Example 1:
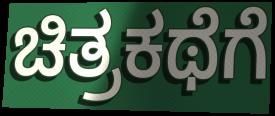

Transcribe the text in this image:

ಚಿತ್ರಕಥೆಗೆ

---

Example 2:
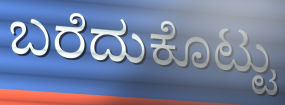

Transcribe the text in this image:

ಬರೆದುಕೊಟ್ಟು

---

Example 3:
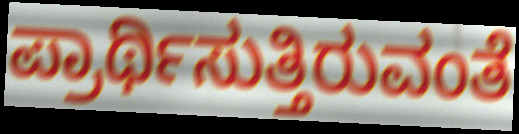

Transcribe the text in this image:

ಪ್ರಾರ್ಥಿಸುತ್ತಿರುವಂತೆ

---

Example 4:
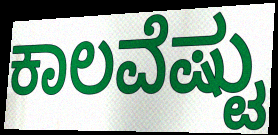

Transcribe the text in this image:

ಕಾಲವೆಷ್ಟು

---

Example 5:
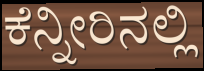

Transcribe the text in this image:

ಕೆನ್ನೀರಿನಲ್ಲಿ